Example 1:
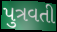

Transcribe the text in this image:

પુત્રવતી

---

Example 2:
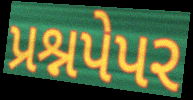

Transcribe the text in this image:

પ્રશ્નપેપર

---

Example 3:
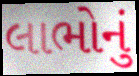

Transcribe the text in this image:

લાભોનું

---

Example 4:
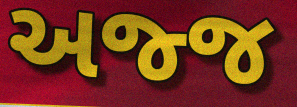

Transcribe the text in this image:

અજ્જ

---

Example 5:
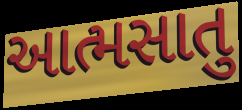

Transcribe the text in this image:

આત્મસાતુ